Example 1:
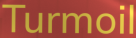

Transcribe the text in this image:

Turmoil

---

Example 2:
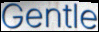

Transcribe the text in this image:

Gentle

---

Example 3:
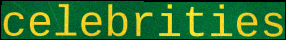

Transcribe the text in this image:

celebrities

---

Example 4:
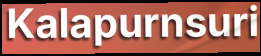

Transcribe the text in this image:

Kalapurnsuri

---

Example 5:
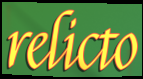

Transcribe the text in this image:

relicto